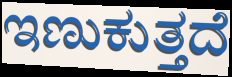
ಇಣುಕುತ್ತದೆ